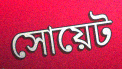
সোয়েট